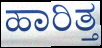
ಹಾರಿತ್ತ